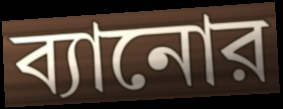
ব্যানোর